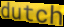
dutch